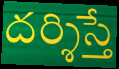
దర్శిస్తే